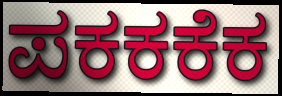
ಪಕಕಕೆಕ